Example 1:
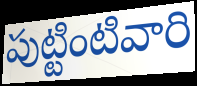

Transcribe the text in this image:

పుట్టింటివారి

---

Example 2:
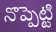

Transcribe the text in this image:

నొప్పెట్టి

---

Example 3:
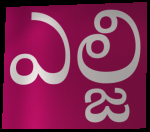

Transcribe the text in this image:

ఎల్జి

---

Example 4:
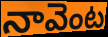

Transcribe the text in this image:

నావెంట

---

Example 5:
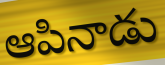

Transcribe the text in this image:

ఆపినాడు